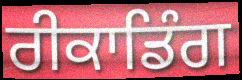
ਰੀਕਾਡਿੰਗ